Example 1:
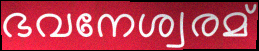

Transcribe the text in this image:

ഭവനേശ്വരമ്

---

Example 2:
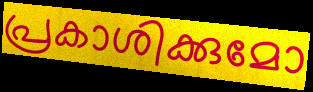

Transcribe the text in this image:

പ്രകാശിക്കുമോ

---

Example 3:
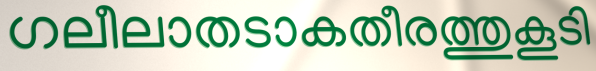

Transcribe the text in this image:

ഗലീലാതടാകതീരത്തുകൂടി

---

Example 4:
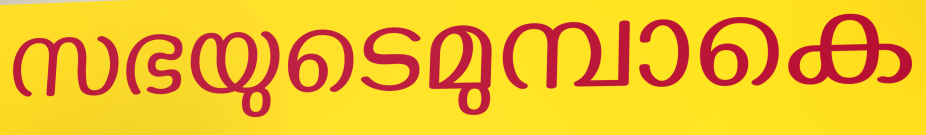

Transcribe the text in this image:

സഭയുടെമുമ്പാകെ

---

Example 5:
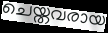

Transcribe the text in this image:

ചെയ്തവരായ